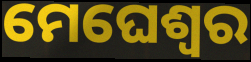
ମେଘେଶ୍ୱର